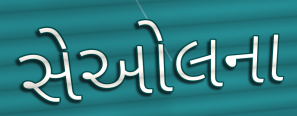
સેઓલના